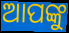
ଆପଙ୍କୁ